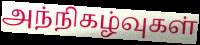
அந்நிகழ்வுகள்